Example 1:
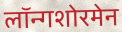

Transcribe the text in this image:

लॉन्गशोरमेन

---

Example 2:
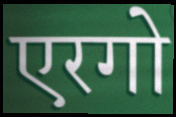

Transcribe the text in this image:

एरगो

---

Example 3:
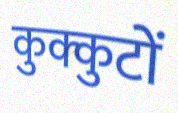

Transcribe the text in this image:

कुक्कुटों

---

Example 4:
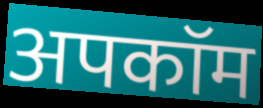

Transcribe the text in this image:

अपकॉम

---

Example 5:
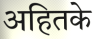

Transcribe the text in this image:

अहितके